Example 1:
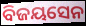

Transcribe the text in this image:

ବିଜୟସେନ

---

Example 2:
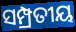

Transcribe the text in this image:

ସମ୍ପ୍ରତୀୟ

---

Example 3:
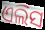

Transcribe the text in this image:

ଏଲିସ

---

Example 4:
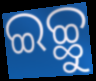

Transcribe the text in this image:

ଇଚ୍ଛୁ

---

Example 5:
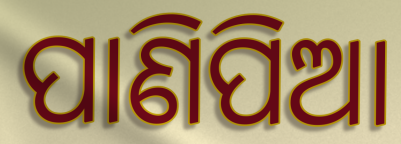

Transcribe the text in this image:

ପାଣିପିଆ